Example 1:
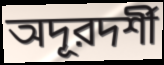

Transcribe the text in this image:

অদূরদর্শী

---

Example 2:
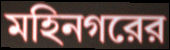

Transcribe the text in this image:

মহিনগরের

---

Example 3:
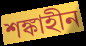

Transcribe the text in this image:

শঙ্কাহীন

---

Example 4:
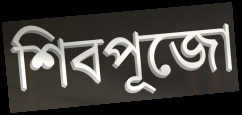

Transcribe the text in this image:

শিবপূজো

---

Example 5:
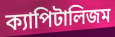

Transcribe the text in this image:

ক্যাপিটালিজম